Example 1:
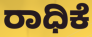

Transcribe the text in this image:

ರಾಧಿಕೆ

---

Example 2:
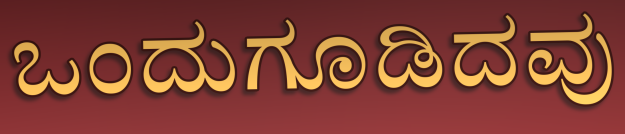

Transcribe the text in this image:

ಒಂದುಗೂಡಿದವು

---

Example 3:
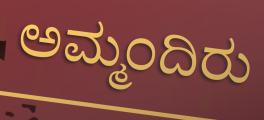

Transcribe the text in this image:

ಅಮ್ಮಂದಿರು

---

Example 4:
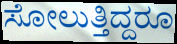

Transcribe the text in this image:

ಸೋಲುತ್ತಿದ್ದರೂ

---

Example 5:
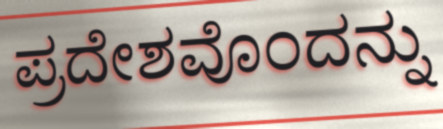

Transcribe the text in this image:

ಪ್ರದೇಶವೊಂದನ್ನು